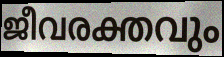
ജീവരക്തവും